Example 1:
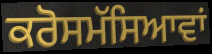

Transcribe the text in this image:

ਕਰੋਸਮੱਸਿਆਵਾਂ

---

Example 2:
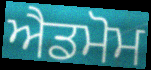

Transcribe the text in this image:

ਐਡਮੋਮ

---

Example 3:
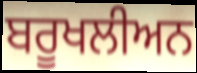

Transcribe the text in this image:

ਬਰੂਖਲੀਅਨ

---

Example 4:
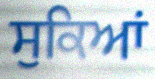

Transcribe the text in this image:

ਸੁਕਿਆਂ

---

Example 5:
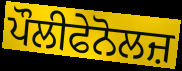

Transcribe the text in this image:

ਪੌਲੀਫੇਨੋਲਜ਼